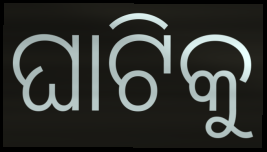
ଘାଟିକୁ